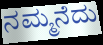
ನಮ್ಮನೆದು